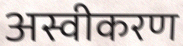
अस्वीकरण